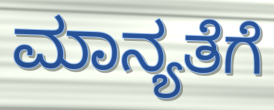
ಮಾನ್ಯತೆಗೆ